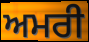
ਅਮਰੀ